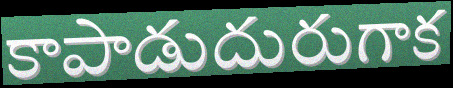
కాపాడుదురుగాక